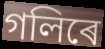
গলিৰে